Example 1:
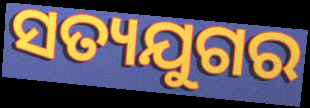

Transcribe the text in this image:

ସତ୍ୟଯୁଗର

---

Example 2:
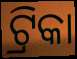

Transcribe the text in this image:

ଟ୍ରିକା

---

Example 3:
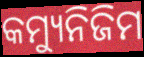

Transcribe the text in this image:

କମ୍ୟୁନିଜିମ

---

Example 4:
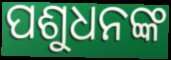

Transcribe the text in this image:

ପଶୁଧନଙ୍କ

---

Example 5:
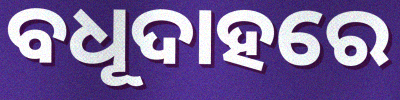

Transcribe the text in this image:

ବଧୂଦାହରେ